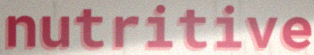
nutritive